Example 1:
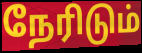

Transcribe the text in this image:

நேரிடும்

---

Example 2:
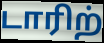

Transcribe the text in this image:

டாரிற்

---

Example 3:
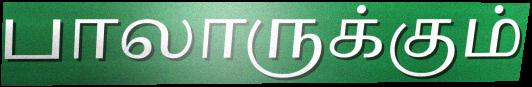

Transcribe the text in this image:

பாலாருக்கும்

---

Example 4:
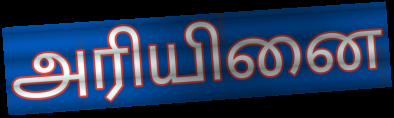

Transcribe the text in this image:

அரியினை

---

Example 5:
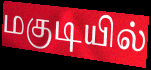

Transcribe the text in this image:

மகுடியில்